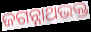
ଜଗନ୍ନାଥଭକ୍ତ